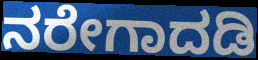
ನರೇಗಾದಡಿ